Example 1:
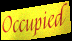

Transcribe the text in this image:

Occupied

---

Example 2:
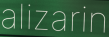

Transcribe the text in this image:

alizarin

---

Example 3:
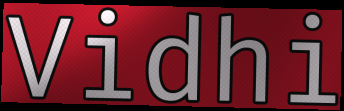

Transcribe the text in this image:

Vidhi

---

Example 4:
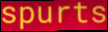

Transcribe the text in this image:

spurts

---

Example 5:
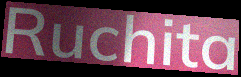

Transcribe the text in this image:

Ruchita